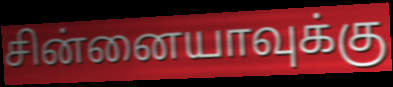
சின்னையாவுக்கு